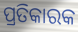
ପ୍ରତିକାରକ